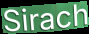
Sirach